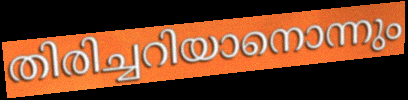
തിരിച്ചറിയാനൊന്നും